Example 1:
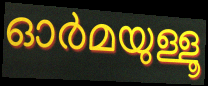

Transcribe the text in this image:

ഓർമയുള്ളൂ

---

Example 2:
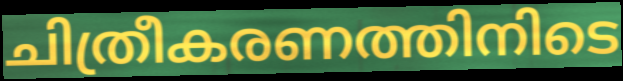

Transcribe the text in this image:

ചിത്രീകരണത്തിനിടെ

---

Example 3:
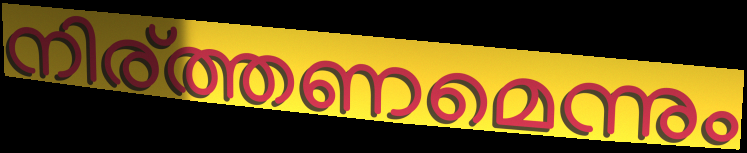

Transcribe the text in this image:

നിര്ത്തണമെന്നും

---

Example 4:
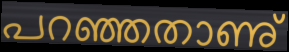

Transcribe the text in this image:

പറഞ്ഞതാണു്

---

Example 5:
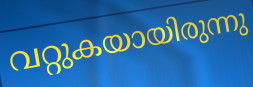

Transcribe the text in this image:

വറ്റുകയായിരുന്നു